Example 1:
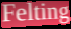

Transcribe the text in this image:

Felting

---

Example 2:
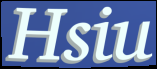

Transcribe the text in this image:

Hsiu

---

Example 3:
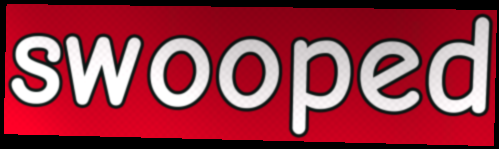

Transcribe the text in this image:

swooped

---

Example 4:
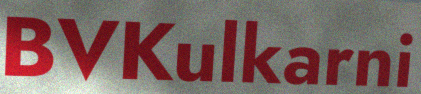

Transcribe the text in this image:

BVKulkarni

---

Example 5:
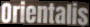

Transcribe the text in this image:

Orientalis